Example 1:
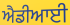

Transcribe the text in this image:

ਐਡੀਆਈ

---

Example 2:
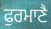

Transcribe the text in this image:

ਫੁਰਮਾਣੈ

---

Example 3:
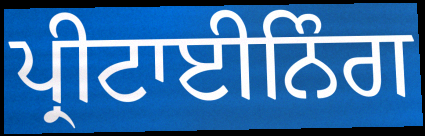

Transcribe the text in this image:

ਪ੍ਰੀਟਾਈਨਿੰਗ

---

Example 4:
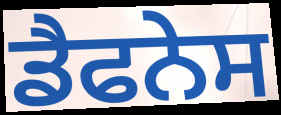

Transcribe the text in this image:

ਡੈਫਨੇਸ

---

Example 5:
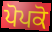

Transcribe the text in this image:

ਪੋਪਕੋ